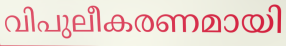
വിപുലീകരണമായി